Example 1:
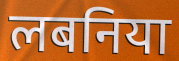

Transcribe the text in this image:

लबनिया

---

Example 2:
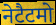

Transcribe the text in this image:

नेटैटमो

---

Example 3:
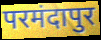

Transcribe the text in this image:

परमंदापुर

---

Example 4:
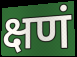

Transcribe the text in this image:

क्षणं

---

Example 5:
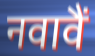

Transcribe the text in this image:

नवावैं